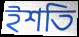
ইশতি